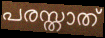
പരസ്താത്